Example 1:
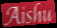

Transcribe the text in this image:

Aishu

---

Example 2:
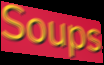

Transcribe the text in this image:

Soups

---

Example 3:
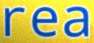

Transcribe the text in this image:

rea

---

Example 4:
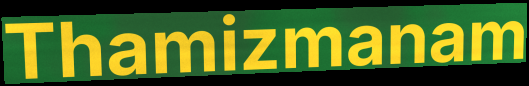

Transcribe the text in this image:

Thamizmanam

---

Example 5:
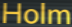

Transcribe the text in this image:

Holm